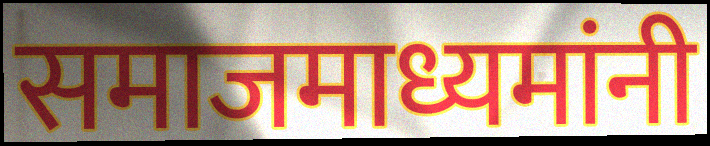
समाजमाध्यमांनी